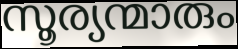
സൂര്യന്മാരും